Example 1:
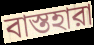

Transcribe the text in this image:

বাস্তহারা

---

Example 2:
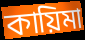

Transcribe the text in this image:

কায়িমা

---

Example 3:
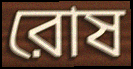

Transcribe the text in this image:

রোষ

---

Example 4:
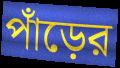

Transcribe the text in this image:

পাঁড়ের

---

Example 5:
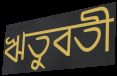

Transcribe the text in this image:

ঋতুবতী